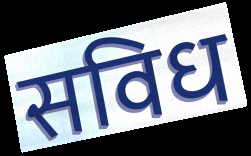
सविध